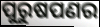
ପୁରୁଷପଣର